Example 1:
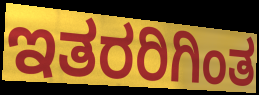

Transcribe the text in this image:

ಇತರರಿಗಿಂತ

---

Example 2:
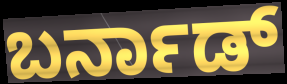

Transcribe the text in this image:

ಬರ್ನಾಡ್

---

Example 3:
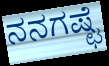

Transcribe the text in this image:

ನನಗಷ್ಟೆ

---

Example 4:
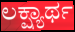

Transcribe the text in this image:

ಲಕ್ಷ್ಯಾರ್ಥ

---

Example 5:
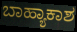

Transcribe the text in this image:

ಬಾಹ್ಯಾಕಾಶ